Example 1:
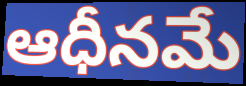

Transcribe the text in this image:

ఆధీనమే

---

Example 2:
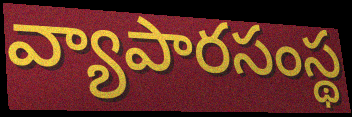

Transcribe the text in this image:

వ్యాపారసంస్థ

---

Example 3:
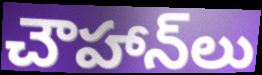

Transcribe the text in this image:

చౌహాన్‌లు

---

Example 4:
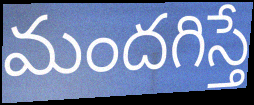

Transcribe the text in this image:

మందగిస్తే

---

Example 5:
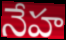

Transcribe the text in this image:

నేహ